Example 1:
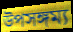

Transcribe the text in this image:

উপসঙ্গম্য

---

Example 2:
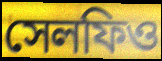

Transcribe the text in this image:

সেলফিও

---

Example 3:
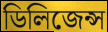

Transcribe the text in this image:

ডিলিজেন্স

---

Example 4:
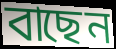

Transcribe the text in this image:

বাছেন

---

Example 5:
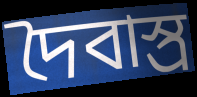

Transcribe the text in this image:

দৈবাস্ত্র